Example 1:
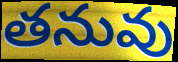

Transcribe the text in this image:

తనువు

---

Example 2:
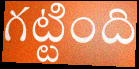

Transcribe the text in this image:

గట్టింది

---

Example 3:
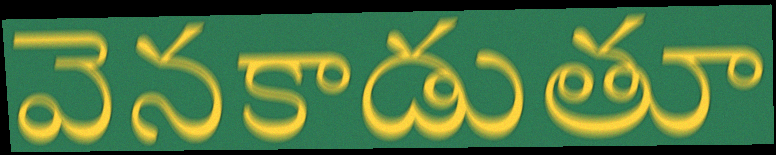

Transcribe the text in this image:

వెనకాడుతూ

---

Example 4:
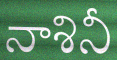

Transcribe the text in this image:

నాశినీ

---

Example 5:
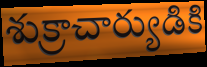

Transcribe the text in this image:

శుక్రాచార్యుడికి